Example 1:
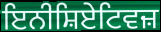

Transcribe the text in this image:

ਇਨੀਸ਼ਿਏਟਿਵਜ਼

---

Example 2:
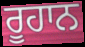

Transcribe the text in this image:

ਰੂਹਾਨ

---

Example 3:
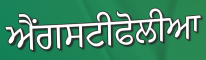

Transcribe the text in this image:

ਐਂਗਸਟੀਫੋਲੀਆ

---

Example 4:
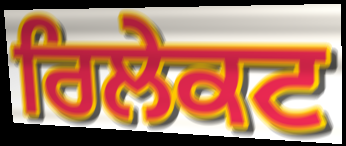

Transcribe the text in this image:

ਰਿਲੇਕਟ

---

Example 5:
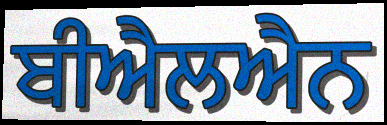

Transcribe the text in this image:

ਬੀਐਲਐਨ